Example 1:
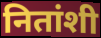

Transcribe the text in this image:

नितांशी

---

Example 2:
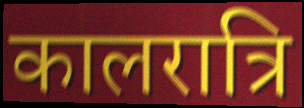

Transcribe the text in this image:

कालरात्रि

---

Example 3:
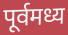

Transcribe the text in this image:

पूर्वमध्य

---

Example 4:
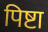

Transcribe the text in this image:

पिष्टा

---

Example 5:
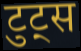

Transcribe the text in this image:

टुट्स